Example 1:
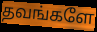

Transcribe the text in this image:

தவங்களே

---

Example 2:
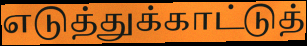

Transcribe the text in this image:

எடுத்துக்காட்டுத்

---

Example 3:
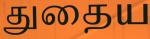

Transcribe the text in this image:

துதைய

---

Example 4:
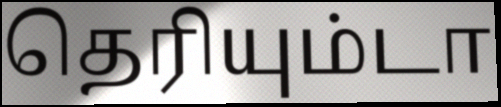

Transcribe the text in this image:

தெரியும்டா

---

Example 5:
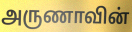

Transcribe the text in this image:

அருணாவின்